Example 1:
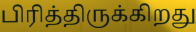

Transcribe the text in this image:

பிரித்திருக்கிறது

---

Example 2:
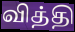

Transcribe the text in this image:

வித்தி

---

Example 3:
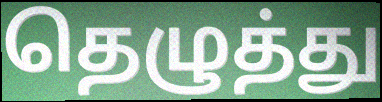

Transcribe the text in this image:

தெழுத்து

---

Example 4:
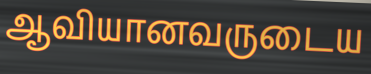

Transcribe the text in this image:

ஆவியானவருடைய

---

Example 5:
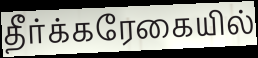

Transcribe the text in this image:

தீர்க்கரேகையில்